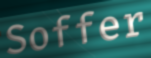
Soffer